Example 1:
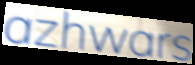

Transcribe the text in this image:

azhwars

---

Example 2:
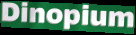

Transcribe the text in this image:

Dinopium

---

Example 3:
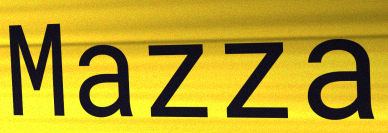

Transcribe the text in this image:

Mazza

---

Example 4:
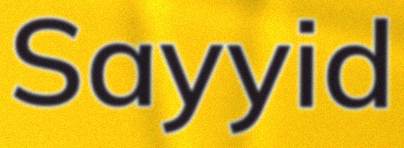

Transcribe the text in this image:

Sayyid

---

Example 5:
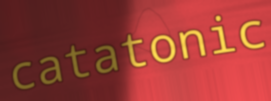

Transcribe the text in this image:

catatonic